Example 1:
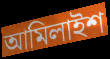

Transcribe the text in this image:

আমিলাইশ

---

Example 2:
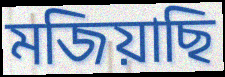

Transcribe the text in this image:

মজিয়াছি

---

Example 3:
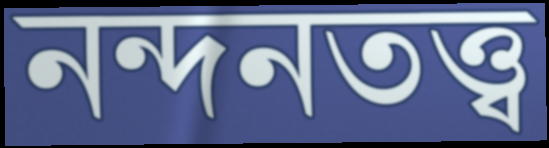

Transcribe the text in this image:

নন্দনতত্ত্ব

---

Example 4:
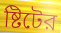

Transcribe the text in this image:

ষ্টিটের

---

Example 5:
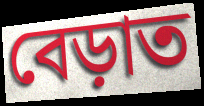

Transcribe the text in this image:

বেড়াত